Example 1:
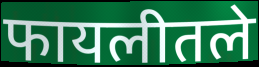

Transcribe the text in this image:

फायलीतले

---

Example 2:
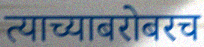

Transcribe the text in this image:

त्याच्याबरोबरच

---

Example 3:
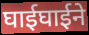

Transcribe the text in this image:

घाईघाईने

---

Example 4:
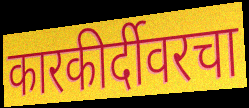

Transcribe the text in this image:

कारकीर्दीवरचा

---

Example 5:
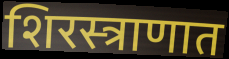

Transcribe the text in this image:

शिरस्त्राणात